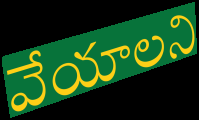
వేయాలని